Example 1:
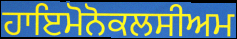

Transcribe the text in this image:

ਹਾਇਮੋਨੋਕਲਸੀਅਮ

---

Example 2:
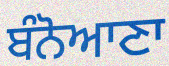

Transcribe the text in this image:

ਬੰਨੋਆਣਾ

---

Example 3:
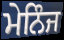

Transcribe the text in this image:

ਮੇਨਿੰਜ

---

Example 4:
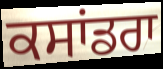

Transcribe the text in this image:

ਕਸਾਂਡਰਾ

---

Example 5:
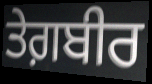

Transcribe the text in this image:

ਤੇਗ਼ਬੀਰ